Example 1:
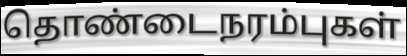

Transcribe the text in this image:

தொண்டைநரம்புகள்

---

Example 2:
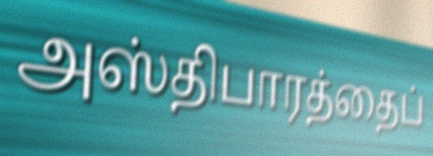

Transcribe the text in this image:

அஸ்திபாரத்தைப்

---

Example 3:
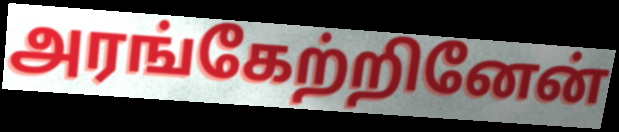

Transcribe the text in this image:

அரங்கேற்றினேன்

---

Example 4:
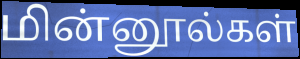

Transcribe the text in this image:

மின்னூல்கள்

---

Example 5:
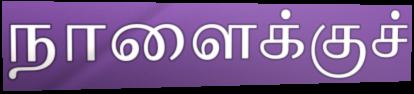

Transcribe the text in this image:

நாளைக்குச்